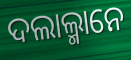
ଦଲାଲ୍ମାନେ